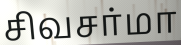
சிவசர்மா